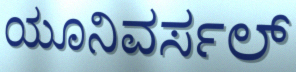
ಯೂನಿವರ್ಸಲ್